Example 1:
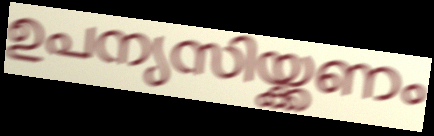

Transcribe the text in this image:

ഉപന്യസിയ്ക്കണം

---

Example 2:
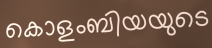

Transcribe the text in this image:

കൊളംബിയയുടെ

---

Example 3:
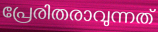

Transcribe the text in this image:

പ്രേരിതരാവുന്നത്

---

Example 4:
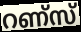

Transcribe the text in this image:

റണ്സ്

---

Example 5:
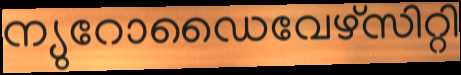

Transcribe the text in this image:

ന്യുറോഡൈവേഴ്സിറ്റി